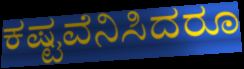
ಕಷ್ಟವೆನಿಸಿದರೂ